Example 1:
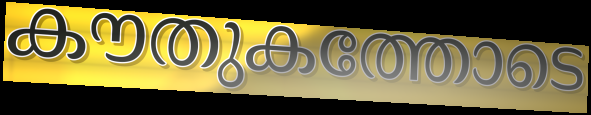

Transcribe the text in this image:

കൗതുകത്തോടെ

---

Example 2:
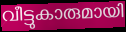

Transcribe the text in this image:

വീട്ടുകാരുമായി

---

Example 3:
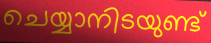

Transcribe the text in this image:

ചെയ്യാനിടയുണ്ട്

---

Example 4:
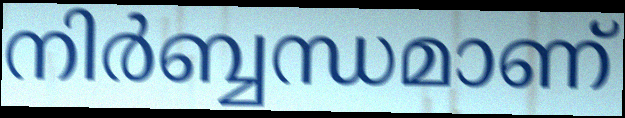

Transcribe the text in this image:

നിർബ്ബന്ധമാണ്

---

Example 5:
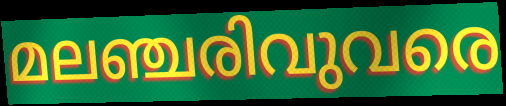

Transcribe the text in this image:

മലഞ്ചരിവുവരെ